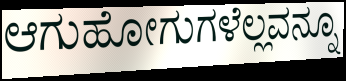
ಆಗುಹೋಗುಗಳೆಲ್ಲವನ್ನೂ